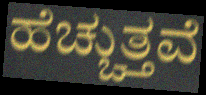
ಹೆಚ್ಚುತ್ತವೆ